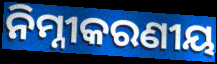
ନିମ୍ନୀକରଣୀୟ